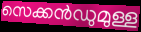
സെക്കൻഡുമുള്ള